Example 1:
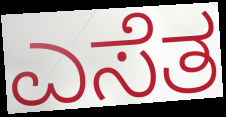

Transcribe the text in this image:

ಎಸೆತ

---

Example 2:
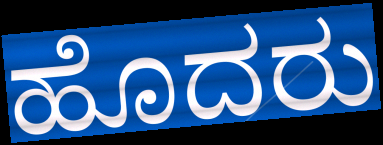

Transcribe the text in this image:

ಹೊದರು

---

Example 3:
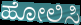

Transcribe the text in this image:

ಹೋಲಿಸಿ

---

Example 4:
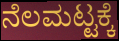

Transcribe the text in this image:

ನೆಲಮಟ್ಟಕ್ಕೆ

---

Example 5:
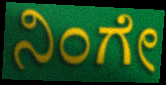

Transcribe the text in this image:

ನಿಂಗೇ